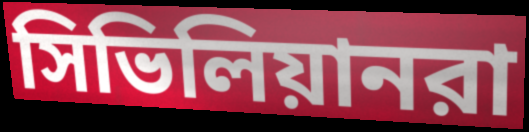
সিভিলিয়ানরা